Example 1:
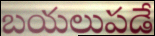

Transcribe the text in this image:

బయలుపడే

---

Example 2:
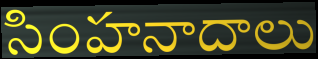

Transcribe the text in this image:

సింహనాదాలు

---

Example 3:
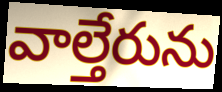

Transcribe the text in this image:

వాల్తేరును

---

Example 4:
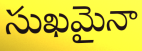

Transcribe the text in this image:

సుఖమైనా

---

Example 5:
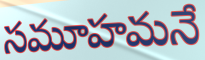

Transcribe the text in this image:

సమూహమనే